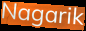
Nagarik